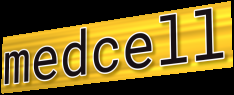
medcell